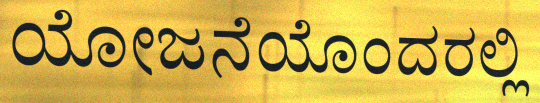
ಯೋಜನೆಯೊಂದರಲ್ಲಿ